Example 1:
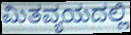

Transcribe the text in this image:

ಮಿತವ್ಯಯದಲ್ಲಿ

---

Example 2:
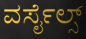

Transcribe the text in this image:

ವರ್ಸೈಲ್ಸ್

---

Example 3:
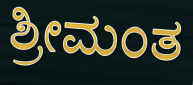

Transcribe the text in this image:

ಶ್ರೀಮಂತ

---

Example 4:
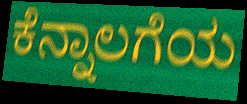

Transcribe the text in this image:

ಕೆನ್ನಾಲಗೆಯ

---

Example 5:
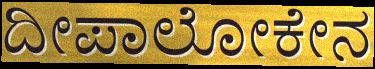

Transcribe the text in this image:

ದೀಪಾಲೋಕೇನ